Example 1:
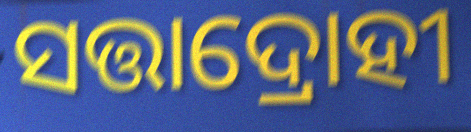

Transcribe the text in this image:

ସତ୍ତାଦ୍ରୋହୀ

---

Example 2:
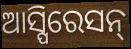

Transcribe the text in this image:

ଆସ୍ପିରେସନ୍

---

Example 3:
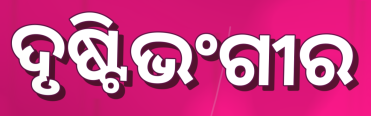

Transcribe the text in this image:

ଦୃଷ୍ଟିଭଂଗୀର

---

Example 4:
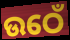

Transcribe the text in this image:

ଉଠେଁ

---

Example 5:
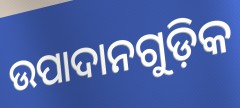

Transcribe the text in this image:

ଉପାଦାନଗୁଡ଼ିକ